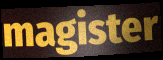
magister